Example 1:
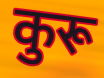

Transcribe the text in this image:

कुरू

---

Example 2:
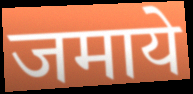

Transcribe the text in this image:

जमाये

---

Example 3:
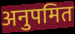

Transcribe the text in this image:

अनुपमित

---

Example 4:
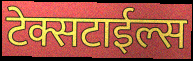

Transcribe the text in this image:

टेक्सटाईल्स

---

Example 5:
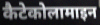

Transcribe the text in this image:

कैटेकोलामाइन